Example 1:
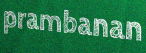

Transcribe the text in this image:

prambanan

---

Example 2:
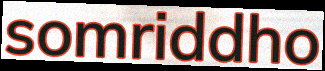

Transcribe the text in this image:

somriddho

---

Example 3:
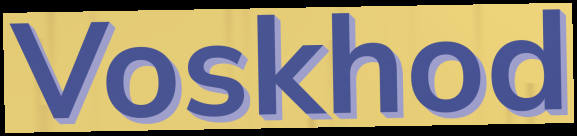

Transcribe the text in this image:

Voskhod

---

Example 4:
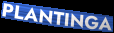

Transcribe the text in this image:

PLANTINGA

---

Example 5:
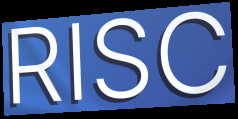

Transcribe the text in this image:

RISC